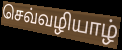
செவ்வழியாழ்